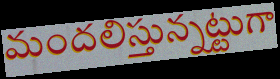
మందలిస్తున్నట్టుగా